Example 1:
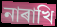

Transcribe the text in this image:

নাৰাখি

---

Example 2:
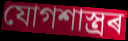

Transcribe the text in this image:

যোগশাস্ত্ৰৰ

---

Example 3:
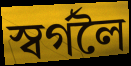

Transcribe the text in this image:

স্বৰ্গলৈ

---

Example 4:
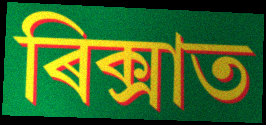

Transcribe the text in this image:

ৰিক্সাত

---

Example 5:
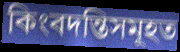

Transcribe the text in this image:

কিংবদন্তিসমূহত